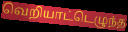
வெறியாட்டெழுந்த